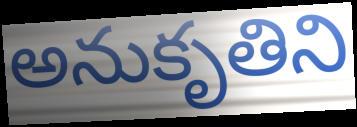
అనుకృతిని